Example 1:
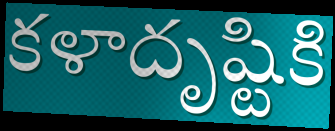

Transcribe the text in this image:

కళాదృష్టికి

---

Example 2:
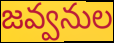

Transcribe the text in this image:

జవ్వనుల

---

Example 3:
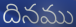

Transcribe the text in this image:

దినము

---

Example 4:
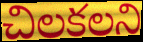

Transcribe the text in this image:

చిలకలని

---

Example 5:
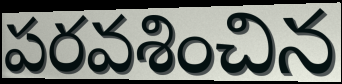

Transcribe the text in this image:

పరవశించిన